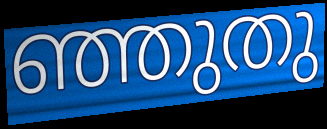
ഞ്ഞുതു